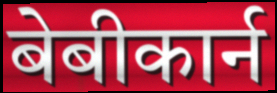
बेबीकार्न